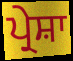
ਪ੍ਰੇਸ਼ਾ